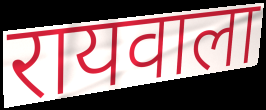
रायवाला